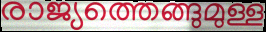
രാജ്യത്തെങ്ങുമുള്ള